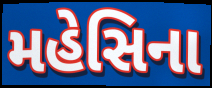
મહેસિના